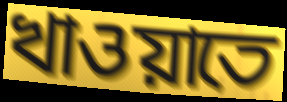
খাওয়াতে